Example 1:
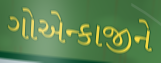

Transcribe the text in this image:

ગોએન્કાજીને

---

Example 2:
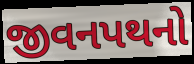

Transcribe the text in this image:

જીવનપથનો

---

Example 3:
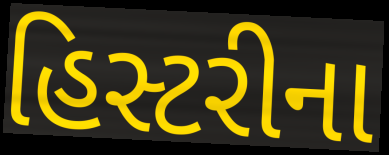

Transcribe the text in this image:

હિસ્ટરીના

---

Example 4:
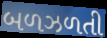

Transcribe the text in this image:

બળઝળતી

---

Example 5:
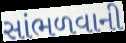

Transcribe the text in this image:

સાંભળવાની